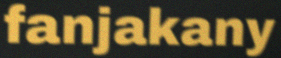
fanjakany